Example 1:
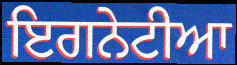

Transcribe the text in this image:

ਇਗਨੇਟੀਆ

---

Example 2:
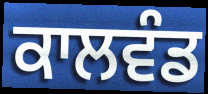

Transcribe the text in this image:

ਕਾਲਵੰਡ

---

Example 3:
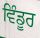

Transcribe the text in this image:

ਵਿੰਡੂਰ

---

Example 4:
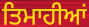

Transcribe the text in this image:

ਤਿਮਾਹੀਆਂ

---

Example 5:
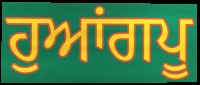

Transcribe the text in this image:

ਹੁਆਂਗਪੂ